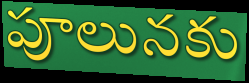
పూలునకు